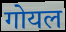
गोयल